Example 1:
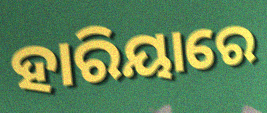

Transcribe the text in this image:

ହାରିୟାରେ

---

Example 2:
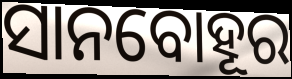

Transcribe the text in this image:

ସାନବୋହୂର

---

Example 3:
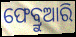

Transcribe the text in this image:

ଫେବ୍ରୁଆରି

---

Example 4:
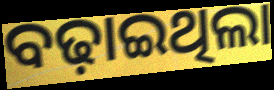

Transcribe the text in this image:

ବଢ଼ାଇଥିଲା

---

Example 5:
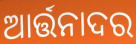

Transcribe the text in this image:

ଆର୍ତ୍ତନାଦର